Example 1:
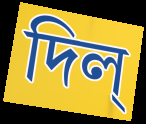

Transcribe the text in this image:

দিল্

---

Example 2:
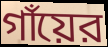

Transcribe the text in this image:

গাঁয়ের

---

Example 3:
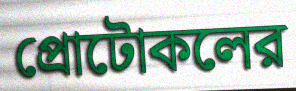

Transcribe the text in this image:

প্রোটোকলের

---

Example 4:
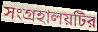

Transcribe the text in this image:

সংগ্রহালয়টির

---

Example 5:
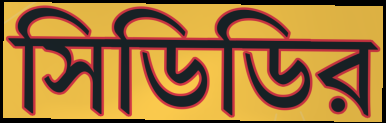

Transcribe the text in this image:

সিডিডির